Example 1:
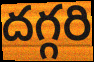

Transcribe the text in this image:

దగ్గరి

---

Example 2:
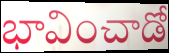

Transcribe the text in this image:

భావించాడో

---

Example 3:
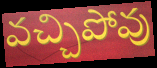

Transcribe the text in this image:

వచ్చిపోవు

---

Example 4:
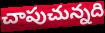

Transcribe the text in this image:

చాపుచున్నది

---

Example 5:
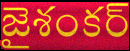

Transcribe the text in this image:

జైశంకర్